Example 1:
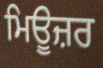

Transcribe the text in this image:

ਮਿਊਜ਼ਰ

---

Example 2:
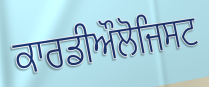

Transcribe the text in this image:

ਕਾਰਡੀਔਲੋਜਿਸਟ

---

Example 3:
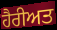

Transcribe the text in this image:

ਹੈਰੀਅਤ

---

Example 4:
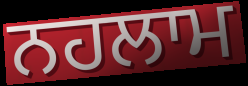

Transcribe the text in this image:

ਨਹਲਾਮ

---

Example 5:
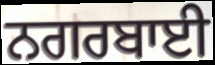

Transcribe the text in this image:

ਨਗਰਬਾਈ